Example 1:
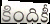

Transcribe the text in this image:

కిందికీ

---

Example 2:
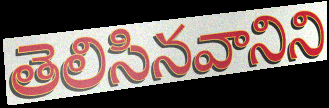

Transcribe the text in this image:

తెలిసినవానిని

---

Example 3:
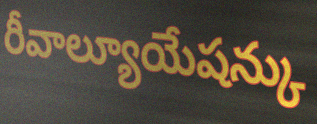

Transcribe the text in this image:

రీవాల్యూయేషన్కు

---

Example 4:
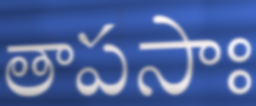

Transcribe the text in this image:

తాపసాః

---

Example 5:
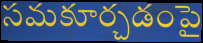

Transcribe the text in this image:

సమకూర్చడంపై